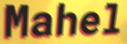
Mahel